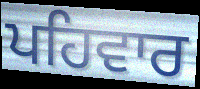
ਪਹਿਵਾਰ